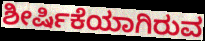
ಶೀರ್ಷಿಕೆಯಾಗಿರುವ